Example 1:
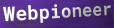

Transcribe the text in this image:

Webpioneer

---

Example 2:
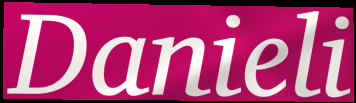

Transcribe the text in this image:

Danieli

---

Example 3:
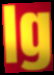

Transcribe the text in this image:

Ig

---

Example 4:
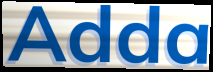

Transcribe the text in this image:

Adda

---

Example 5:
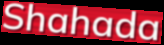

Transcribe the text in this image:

Shahada